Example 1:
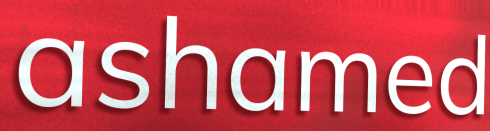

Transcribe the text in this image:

ashamed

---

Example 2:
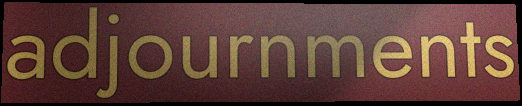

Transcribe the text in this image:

adjournments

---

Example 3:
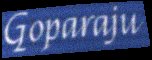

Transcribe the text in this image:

Goparaju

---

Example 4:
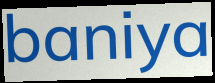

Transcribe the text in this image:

baniya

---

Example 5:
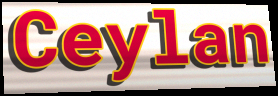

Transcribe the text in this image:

Ceylan